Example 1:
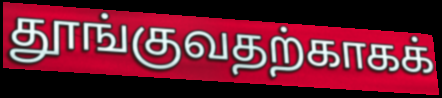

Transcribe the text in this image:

தூங்குவதற்காகக்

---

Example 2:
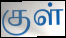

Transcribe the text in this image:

குள்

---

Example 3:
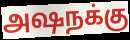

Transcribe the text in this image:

அஷநக்கு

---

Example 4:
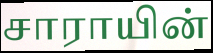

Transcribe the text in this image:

சாராயின்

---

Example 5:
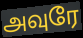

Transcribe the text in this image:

அவுரே